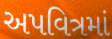
અપવિત્રમાં